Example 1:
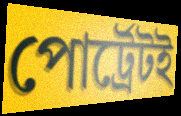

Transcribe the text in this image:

পোর্ট্রেটই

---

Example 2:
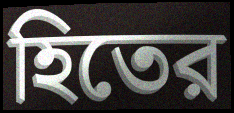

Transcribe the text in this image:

হিতের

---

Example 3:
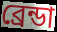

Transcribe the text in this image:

ব্রেন্ডা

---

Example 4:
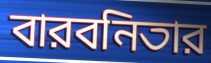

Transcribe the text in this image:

বারবনিতার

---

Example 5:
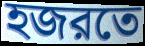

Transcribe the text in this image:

হজরতে